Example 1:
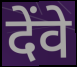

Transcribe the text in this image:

देंवे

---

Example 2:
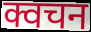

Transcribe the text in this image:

क्वचन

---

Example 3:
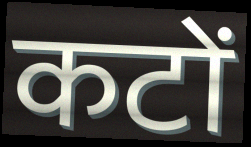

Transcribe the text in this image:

कटों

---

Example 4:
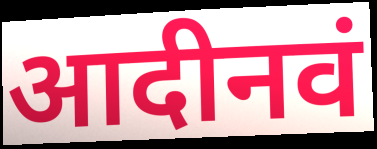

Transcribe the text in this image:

आदीनवं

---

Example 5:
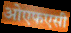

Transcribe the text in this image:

ओएफएसी